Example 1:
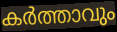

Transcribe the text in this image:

കർത്താവും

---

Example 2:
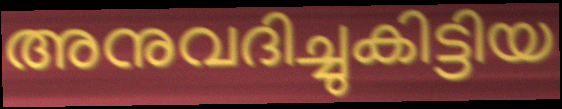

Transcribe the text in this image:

അനുവദിച്ചുകിട്ടിയ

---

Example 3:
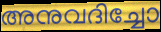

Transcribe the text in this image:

അനുവദിച്ചോ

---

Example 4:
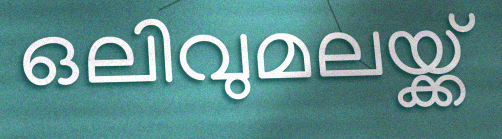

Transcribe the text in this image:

ഒലിവുമലയ്ക്ക്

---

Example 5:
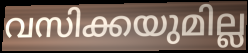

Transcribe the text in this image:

വസിക്കയുമില്ല